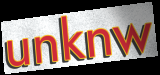
unknw